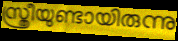
സ്ത്രീയുണ്ടായിരുന്നു